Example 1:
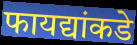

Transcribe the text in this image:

फायद्यांकडे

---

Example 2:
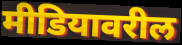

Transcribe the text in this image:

मीडियावरील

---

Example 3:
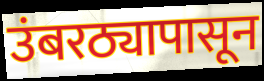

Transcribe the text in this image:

उंबरठ्यापासून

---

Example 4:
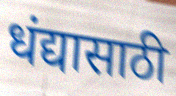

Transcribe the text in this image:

धंद्यासाठी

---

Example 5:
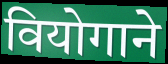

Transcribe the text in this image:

वियोगाने